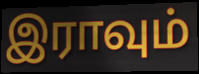
இராவும்